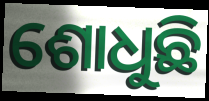
ଶୋଧୁଛି